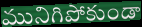
మునిగిపోకుండా